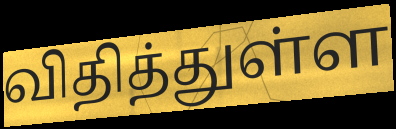
விதித்துள்ள